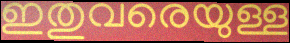
ഇതുവരെയുള്ള